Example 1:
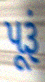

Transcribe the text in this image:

પૂરૂં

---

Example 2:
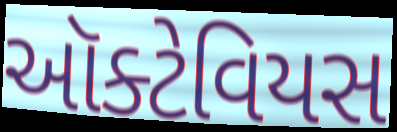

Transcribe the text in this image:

ઑક્ટેવિયસ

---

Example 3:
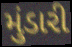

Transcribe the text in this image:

મુંડારી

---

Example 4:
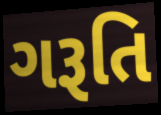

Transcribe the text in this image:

ગરૂતિ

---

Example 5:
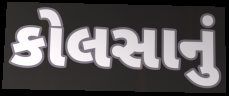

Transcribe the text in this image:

કોલસાનું